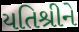
યતિશ્રીને